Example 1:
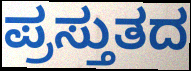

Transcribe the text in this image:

ಪ್ರಸ್ತುತದ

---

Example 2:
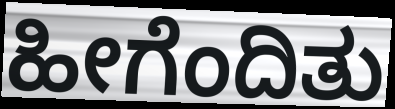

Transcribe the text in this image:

ಹೀಗೆಂದಿತು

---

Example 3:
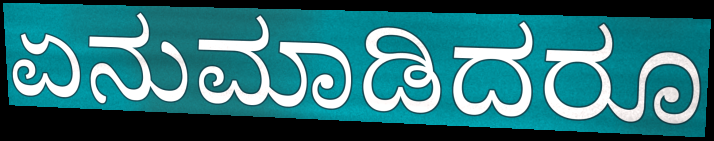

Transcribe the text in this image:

ಏನುಮಾಡಿದರೂ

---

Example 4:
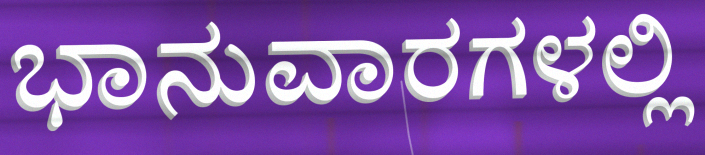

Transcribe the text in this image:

ಭಾನುವಾರಗಳಲ್ಲಿ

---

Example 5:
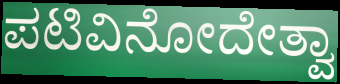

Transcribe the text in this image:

ಪಟಿವಿನೋದೇತ್ವಾ